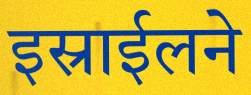
इस्राईलने